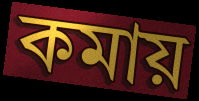
কমায়